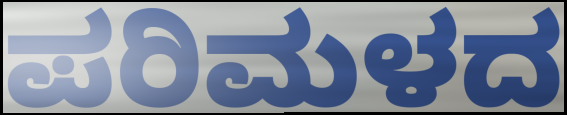
ಪರಿಮಳದ